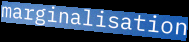
marginalisation